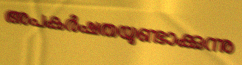
അപകർഷതയുണ്ടാക്കുന്നു